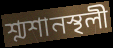
শ্মশানস্থলী